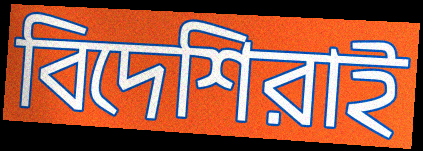
বিদেশিরাই